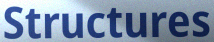
Structures